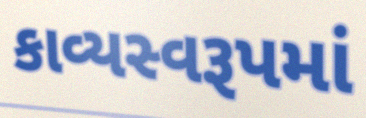
કાવ્યસ્વરૂપમાં